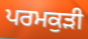
ਪਰਮਕੁੜੀ